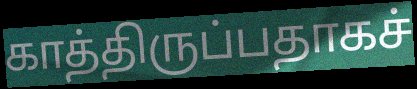
காத்திருப்பதாகச்